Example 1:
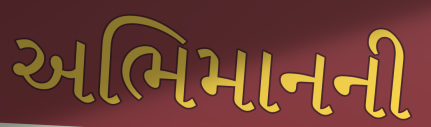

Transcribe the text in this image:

અભિમાનની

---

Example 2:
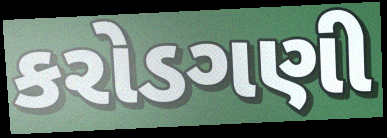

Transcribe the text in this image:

કરોડગણી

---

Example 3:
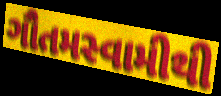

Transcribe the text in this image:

ગૌતમસ્વામીથી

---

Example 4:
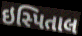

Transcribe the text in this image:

ઇસ્પિતાલ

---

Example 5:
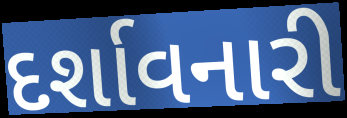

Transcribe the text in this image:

દર્શાવનારી